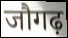
जौगढ़